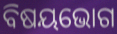
ବିଷୟଭୋଗ